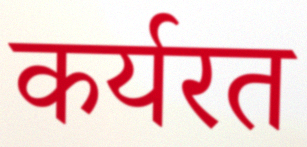
कर्यरत